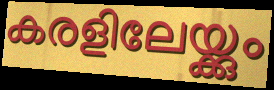
കരളിലേയ്ക്കും